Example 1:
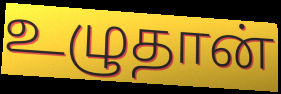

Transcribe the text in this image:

உழுதான்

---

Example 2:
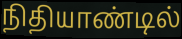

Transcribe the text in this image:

நிதியாண்டில்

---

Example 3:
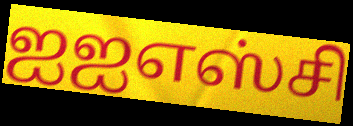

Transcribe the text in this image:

ஐஐஎஸ்சி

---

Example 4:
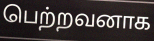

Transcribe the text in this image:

பெற்றவனாக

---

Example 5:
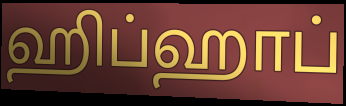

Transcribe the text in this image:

ஹிப்ஹாப்